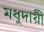
মধুদায়ী